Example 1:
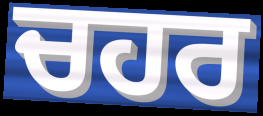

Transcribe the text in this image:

ਚਹਰ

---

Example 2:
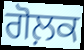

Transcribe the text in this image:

ਗੋਲ਼ਕ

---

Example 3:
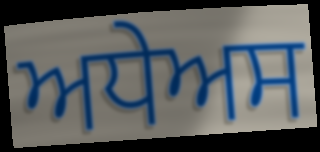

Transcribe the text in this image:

ਅਧੇਅਸ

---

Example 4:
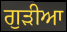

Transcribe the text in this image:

ਗੁਡ਼ੀਆ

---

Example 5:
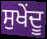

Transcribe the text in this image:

ਸੁਖੇਂਦੂ